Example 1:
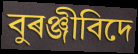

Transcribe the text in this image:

বুৰঞ্জীবিদে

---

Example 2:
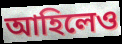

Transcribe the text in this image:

আহিলেও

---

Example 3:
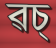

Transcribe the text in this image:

ৱচ্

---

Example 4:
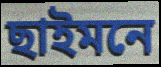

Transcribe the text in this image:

ছাইমনে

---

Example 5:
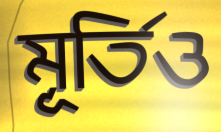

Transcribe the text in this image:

মূৰ্তিও